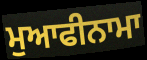
ਮੁਆਫੀਨਾਮਾ